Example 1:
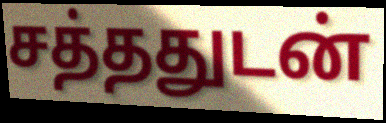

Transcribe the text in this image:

சத்ததுடன்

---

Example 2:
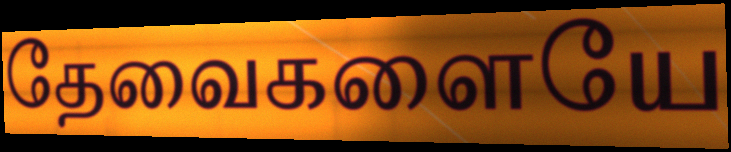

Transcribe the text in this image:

தேவைகளையே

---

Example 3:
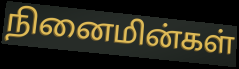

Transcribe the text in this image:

நினைமின்கள்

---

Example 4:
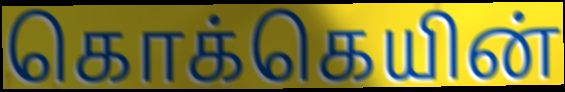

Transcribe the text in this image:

கொக்கெயின்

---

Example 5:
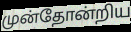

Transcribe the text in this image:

முன்தோன்றிய